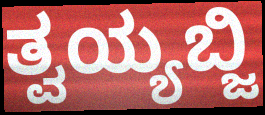
ತ್ವಯ್ಯಬ್ಜಿ